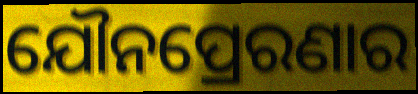
ଯୌନପ୍ରେରଣାର